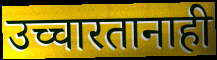
उच्चारतानाही